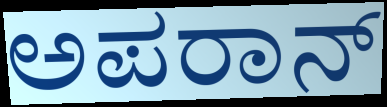
ಅಪರಾನ್